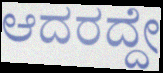
ಆದರದ್ದೇ